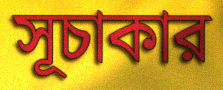
সূচাকার